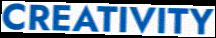
CREATIVITY